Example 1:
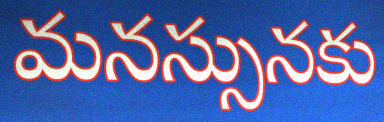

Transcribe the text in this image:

మనస్సునకు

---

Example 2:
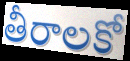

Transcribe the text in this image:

తీరాలకో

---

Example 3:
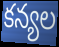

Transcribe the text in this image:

కన్యల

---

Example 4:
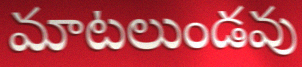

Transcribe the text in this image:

మాటలుండవు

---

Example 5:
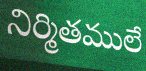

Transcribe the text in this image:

నిర్మితములే